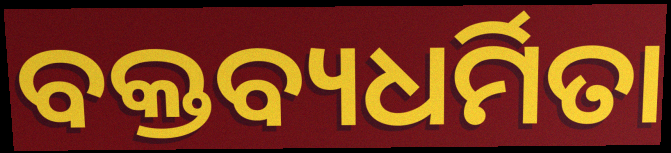
ବକ୍ତବ୍ୟଧର୍ମିତା